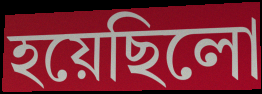
হয়েছিলো